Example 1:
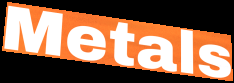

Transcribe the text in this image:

Metals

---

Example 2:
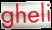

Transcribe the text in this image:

gheli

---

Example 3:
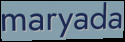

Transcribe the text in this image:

maryada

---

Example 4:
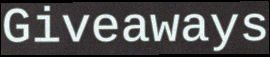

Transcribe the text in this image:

Giveaways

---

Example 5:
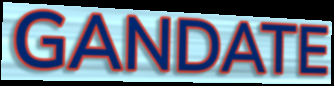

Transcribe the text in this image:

GANDATE